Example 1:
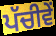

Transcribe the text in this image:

ਪੱਚੀਵੇਂ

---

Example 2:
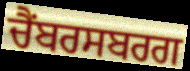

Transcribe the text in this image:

ਚੈਂਬਰਸਬਰਗ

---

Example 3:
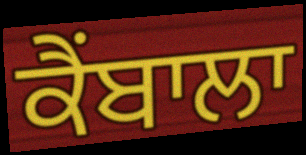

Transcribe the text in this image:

ਕੈਂਬਾਲਾ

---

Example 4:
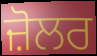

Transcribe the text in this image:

ਜ਼ੋਲਰ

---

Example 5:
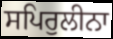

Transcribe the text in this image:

ਸਪਿਰੁਲੀਨਾ